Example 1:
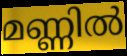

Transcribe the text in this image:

മണ്ണിൽ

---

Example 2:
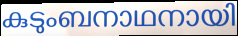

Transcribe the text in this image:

കുടുംബനാഥനായി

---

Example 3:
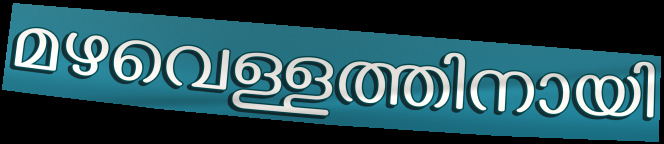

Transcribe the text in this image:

മഴവെള്ളത്തിനായി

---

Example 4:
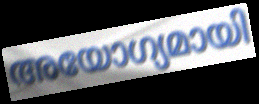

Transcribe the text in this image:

അയോഗ്യമായി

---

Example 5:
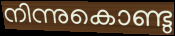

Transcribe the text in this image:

നിന്നുകൊണ്ടു